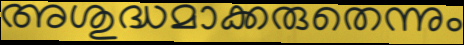
അശുദ്ധമാക്കരുതെന്നും